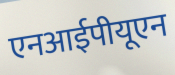
एनआईपीयूएन